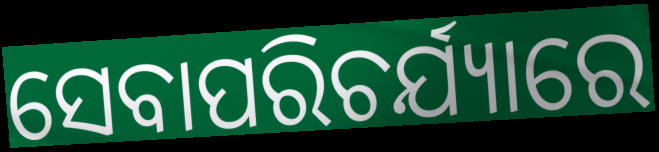
ସେବାପରିଚର୍ଯ୍ୟାରେ